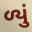
ળ્યું